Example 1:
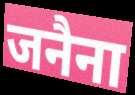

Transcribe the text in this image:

जनैना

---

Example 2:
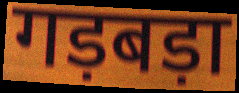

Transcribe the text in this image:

गड़बड़ा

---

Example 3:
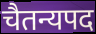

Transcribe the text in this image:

चैतन्यपद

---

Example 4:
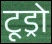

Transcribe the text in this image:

टूड्रो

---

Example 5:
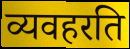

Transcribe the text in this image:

व्यवहरति